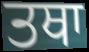
ਤਥਾ